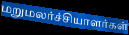
மறுமலர்ச்சியாளர்கள்